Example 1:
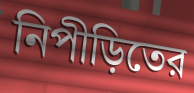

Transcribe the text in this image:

নিপীড়িতের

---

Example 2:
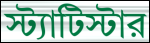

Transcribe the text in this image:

স্ট্যাটিস্টার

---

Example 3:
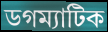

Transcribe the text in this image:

ডগম্যাটিক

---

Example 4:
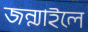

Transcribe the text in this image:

জন্মাইলে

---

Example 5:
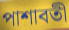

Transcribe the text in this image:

পাশাবতী